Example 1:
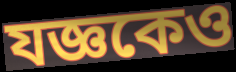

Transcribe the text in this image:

যজ্ঞকেও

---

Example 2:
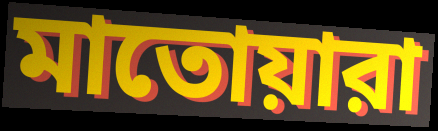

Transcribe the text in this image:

মাতোয়ারা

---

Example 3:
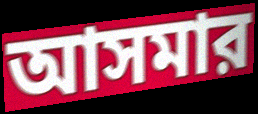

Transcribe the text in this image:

আসমার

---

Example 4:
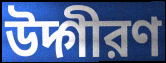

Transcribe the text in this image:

উদ্গীরণ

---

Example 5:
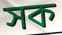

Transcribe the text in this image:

সক